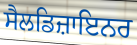
ਸੈਲਡਿਜ਼ਾਇਨਰ